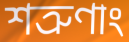
শত্রুণাং